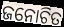
ଜନୋଚିତ